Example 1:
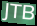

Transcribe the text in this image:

JTB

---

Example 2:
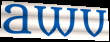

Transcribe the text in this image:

awu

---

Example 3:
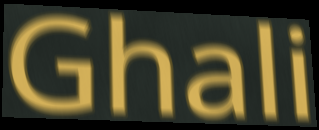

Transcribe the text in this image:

Ghali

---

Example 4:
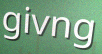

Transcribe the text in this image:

givng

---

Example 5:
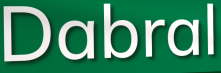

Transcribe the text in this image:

Dabral